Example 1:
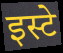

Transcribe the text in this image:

इस्टे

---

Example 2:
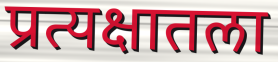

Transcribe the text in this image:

प्रत्यक्षातला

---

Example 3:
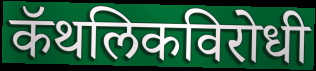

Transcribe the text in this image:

कॅथलिकविरोधी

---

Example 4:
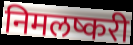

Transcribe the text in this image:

निमलष्करी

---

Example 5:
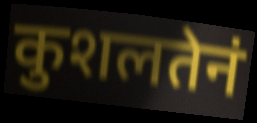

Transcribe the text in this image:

कुशलतेनं